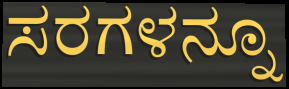
ಸರಗಳನ್ನೂ